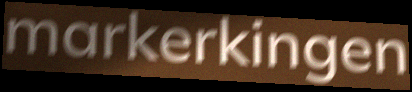
markerkingen